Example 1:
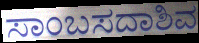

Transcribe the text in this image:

ಸಾಂಬಸದಾಶಿವ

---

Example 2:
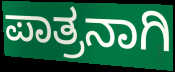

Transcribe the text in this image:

ಪಾತ್ರನಾಗಿ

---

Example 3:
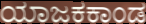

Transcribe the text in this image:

ಯಾಜಕಕಾಂಡ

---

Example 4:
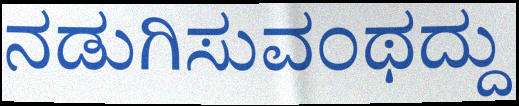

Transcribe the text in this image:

ನಡುಗಿಸುವಂಥದ್ದು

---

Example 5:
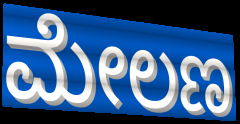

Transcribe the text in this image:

ಮೇಲಣ